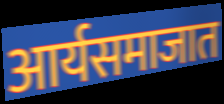
आर्यसमाजात